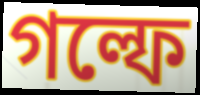
গল্ফে